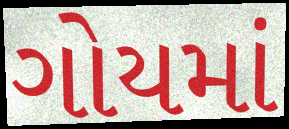
ગોયમાં